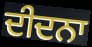
ਦੀਦਨਾ